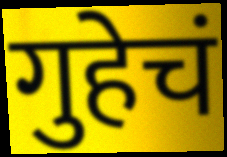
गुहेचं